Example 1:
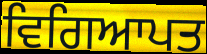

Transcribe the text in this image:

ਵਿਗਿਆਪਤ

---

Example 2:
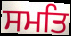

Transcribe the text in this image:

ਸਮਤਿ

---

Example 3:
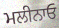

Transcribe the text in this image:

ਮਲੀਨਾਓ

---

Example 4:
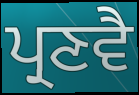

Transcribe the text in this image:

ਪ੍ਰਣਵੈ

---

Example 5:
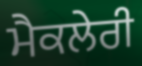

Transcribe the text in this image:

ਮੈਕਲੇਰੀ